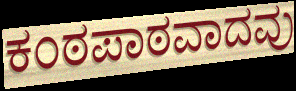
ಕಂಠಪಾಠವಾದವು